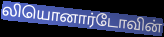
லியொனார்டோவின்